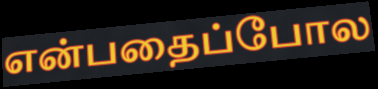
என்பதைப்போல